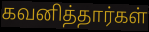
கவனித்தார்கள்